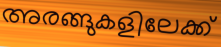
അരങ്ങുകളിലേക്ക്